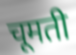
चूमती